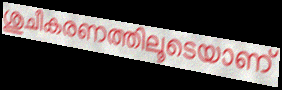
ശുചീകരണത്തിലൂടെയാണ്